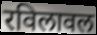
रविलावल